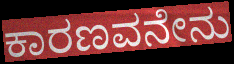
ಕಾರಣವನೇನು